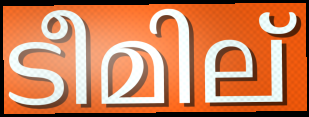
ടീമില്